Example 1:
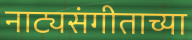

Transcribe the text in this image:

नाट्यसंगीताच्या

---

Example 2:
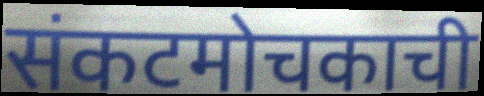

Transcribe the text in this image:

संकटमोचकाची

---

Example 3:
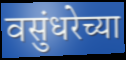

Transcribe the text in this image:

वसुंधरेच्या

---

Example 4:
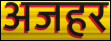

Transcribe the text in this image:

अजहर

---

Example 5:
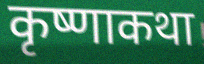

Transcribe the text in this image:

कृष्णाकथा